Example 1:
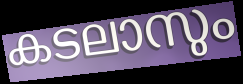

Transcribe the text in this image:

കടലാസും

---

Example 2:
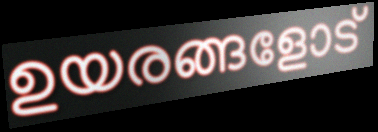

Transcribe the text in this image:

ഉയരങ്ങളോട്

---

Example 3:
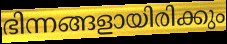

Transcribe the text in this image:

ഭിന്നങ്ങളായിരിക്കും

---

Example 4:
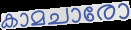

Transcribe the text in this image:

കാമചാരോ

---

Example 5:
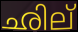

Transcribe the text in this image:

ഛില്